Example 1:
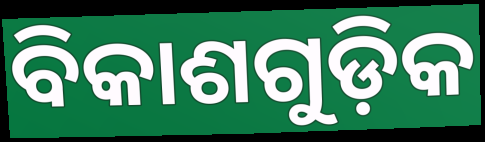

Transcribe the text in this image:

ବିକାଶଗୁଡ଼ିକ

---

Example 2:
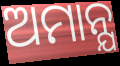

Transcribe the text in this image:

ଅମାନ୍ଯ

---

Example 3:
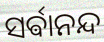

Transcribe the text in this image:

ସର୍ଵାନନ୍ଦ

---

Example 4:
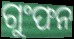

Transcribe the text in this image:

ଗୁଂଫନ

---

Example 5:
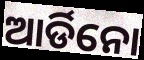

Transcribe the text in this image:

ଆର୍ଡିନୋ